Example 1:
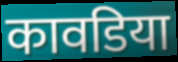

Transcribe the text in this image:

कावडिया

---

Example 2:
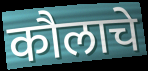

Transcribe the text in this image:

कौलाचे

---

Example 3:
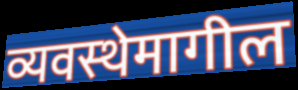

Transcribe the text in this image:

व्यवस्थेमागील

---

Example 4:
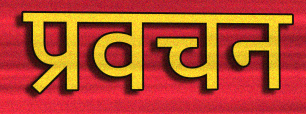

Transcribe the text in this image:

प्रवचन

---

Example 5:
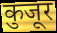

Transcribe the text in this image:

कुजूर